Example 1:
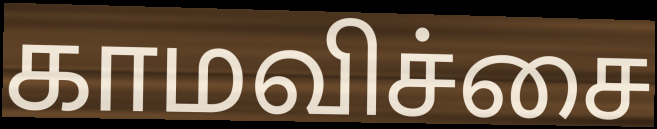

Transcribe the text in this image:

காமவிச்சை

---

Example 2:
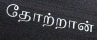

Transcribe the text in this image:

தோற்றான்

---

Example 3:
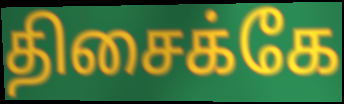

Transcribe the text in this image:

திசைக்கே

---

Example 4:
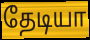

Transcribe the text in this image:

தேடியா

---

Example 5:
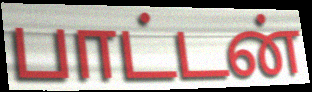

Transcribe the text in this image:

பாட்டன்